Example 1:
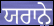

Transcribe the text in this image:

ਯਰਾਨੇ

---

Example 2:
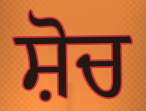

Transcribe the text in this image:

ਸ਼ੋਚ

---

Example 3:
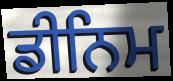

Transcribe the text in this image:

ਡੀਨਿਮ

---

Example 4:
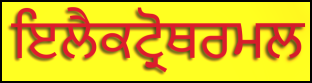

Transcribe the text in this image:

ਇਲੈਕਟ੍ਰੋਥਰਮਲ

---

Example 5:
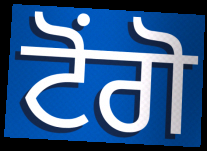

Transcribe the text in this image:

ਟੋਂਗੋ